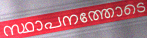
സ്ഥാപനത്തോടെ